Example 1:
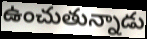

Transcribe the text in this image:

ఉంచుతున్నాడు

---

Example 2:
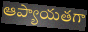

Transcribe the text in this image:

ఆప్యాయతగా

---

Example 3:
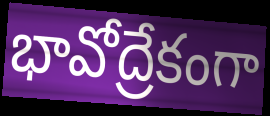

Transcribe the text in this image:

భావోద్రేకంగా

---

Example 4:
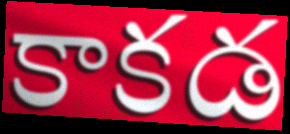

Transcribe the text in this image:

కాకడ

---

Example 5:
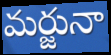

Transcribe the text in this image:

మర్జునా